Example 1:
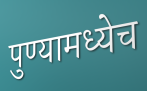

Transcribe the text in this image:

पुण्यामध्येच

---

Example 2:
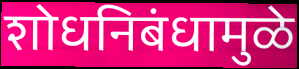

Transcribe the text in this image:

शोधनिबंधामुळे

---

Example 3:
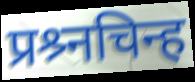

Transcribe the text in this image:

प्रश्र्नचिन्ह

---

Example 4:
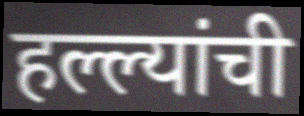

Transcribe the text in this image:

हल्ल्यांची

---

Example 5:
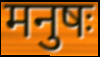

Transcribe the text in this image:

मनुषः